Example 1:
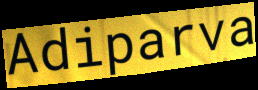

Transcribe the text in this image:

Adiparva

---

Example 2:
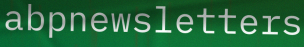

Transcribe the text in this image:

abpnewsletters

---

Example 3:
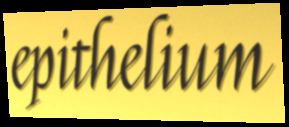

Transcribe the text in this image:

epithelium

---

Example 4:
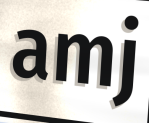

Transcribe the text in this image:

amj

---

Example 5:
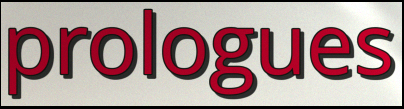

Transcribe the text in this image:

prologues